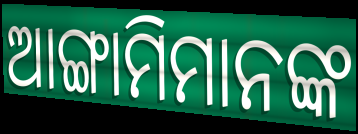
ଆଙ୍ଗାମିମାନଙ୍କ